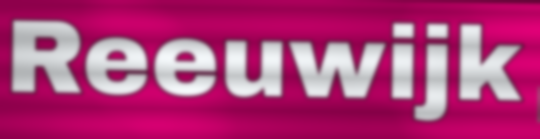
Reeuwijk